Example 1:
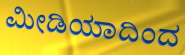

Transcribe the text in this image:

ಮೀಡಿಯಾದಿಂದ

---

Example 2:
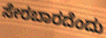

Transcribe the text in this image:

ಸೇರಬಾರದೆಂದು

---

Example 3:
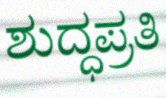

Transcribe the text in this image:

ಶುದ್ಧಪ್ರತಿ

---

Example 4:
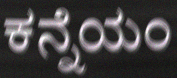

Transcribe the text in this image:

ಕನ್ನೆಯಂ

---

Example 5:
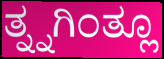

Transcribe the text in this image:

ತ್ನ್ನಗಿಂತ್ಲೂ